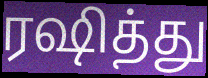
ரஷித்து